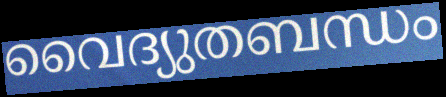
വൈദ്യുതബന്ധം